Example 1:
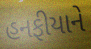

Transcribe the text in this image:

હનફીયાને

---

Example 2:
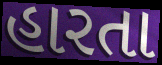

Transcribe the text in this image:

હારતા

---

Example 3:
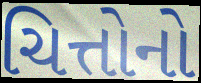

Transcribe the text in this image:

ચિત્તોનો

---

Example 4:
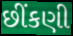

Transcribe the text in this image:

છીંકણી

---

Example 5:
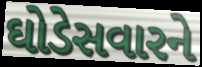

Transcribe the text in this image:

ઘોડેસવારને